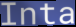
Inta